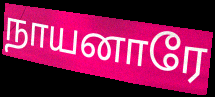
நாயனாரே